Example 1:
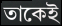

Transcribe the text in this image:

তাকেই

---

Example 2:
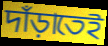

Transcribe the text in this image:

দাঁড়াতেই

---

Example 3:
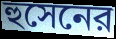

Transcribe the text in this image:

হুসেনের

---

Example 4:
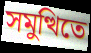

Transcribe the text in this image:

সমুত্থিতে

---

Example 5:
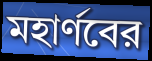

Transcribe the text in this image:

মহার্ণবের